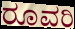
ರೂವರಿ